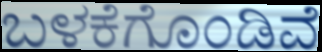
ಬಳಕೆಗೊಂಡಿವೆ